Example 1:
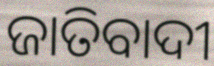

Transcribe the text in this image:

ଜାତିବାଦୀ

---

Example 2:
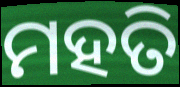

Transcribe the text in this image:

ମହତି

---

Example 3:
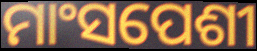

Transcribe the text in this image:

ମାଂସପେଶୀ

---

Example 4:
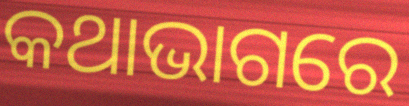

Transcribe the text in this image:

କଥାଭାଗରେ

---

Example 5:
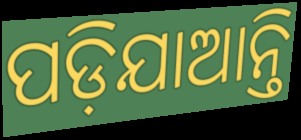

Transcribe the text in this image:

ପଡ଼ିଯାଆନ୍ତି